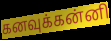
கனவுக்கன்னி